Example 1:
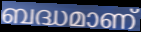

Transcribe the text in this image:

ബദ്ധമാണ്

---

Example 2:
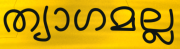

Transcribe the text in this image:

ത്യാഗമല്ല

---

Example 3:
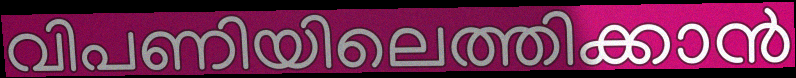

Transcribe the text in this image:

വിപണിയിലെത്തിക്കാൻ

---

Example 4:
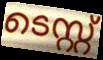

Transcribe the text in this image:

ടെസ്റ്റ്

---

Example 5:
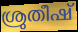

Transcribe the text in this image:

ശ്രുതീഷ്